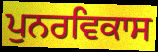
ਪੁਨਰਵਿਕਾਸ